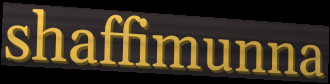
shaffimunna